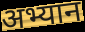
अभ्यान